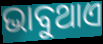
ଭାବୁଥାଏ